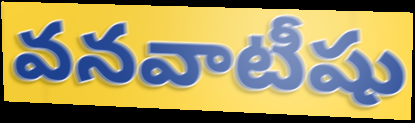
వనవాటీషు